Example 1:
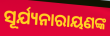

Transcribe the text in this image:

ସୂର୍ଯ୍ୟନାରାୟଣଙ୍କ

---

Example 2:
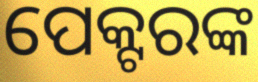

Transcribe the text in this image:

ପେକ୍ଟରଙ୍କ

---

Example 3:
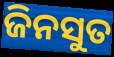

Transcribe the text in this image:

ଜିନସୁତ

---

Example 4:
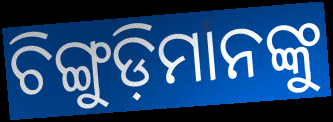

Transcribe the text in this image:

ଚିଙ୍ଗୁଡ଼ିମାନଙ୍କୁ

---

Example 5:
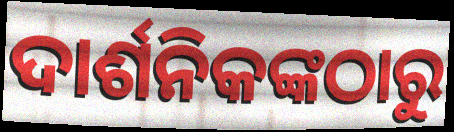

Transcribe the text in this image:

ଦାର୍ଶନିକଙ୍କଠାରୁ